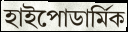
হাইপোডার্মিক